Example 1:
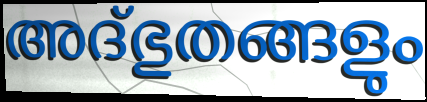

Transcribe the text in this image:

അദ്ഭുതങ്ങളും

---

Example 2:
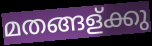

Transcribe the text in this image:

മതങ്ങള്ക്കു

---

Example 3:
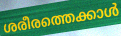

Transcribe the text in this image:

ശരീരത്തെക്കാൾ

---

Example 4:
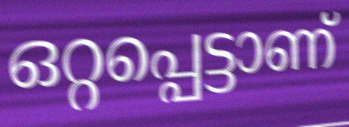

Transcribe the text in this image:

ഒറ്റപ്പെട്ടാണ്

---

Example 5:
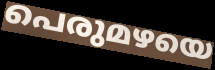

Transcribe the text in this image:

പെരുമഴയെ